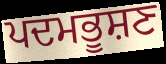
ਪਦਮਭੂਸ਼ਣ